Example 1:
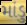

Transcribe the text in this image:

માંડુ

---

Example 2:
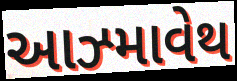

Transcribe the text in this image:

આઝ્માવેથ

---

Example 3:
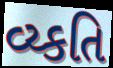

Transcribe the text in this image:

વ્ય્કતિ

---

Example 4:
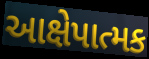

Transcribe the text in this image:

આક્ષેપાત્મક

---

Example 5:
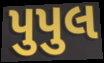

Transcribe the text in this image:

પુપુલ